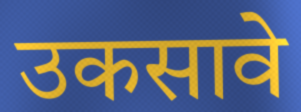
उकसावे